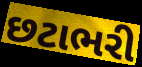
છટાભરી